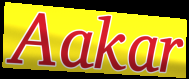
Aakar